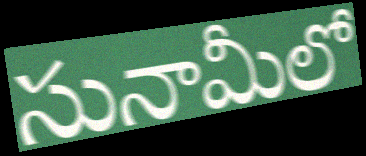
సునామీలో